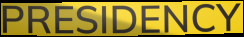
PRESIDENCY